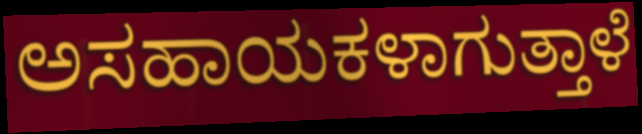
ಅಸಹಾಯಕಳಾಗುತ್ತಾಳೆ